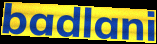
badlani